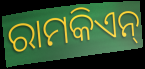
ରାମକିଏନ୍